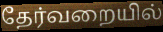
தேர்வறையில்